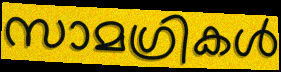
സാമഗ്രികൾ